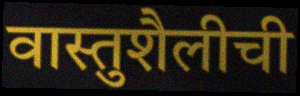
वास्तुशैलीची